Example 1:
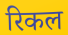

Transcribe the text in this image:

रिकल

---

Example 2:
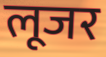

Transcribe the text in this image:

लूजर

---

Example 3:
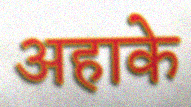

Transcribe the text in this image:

अहाके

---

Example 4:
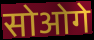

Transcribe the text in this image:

सोओगे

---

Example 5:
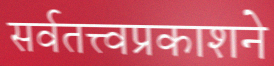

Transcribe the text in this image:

सर्वतत्त्वप्रकाशने